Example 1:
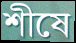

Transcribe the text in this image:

শীষে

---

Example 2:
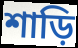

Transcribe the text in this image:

শাড়ি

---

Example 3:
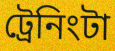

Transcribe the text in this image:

ট্রেনিংটা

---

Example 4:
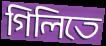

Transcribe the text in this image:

গিলিতে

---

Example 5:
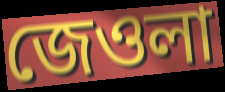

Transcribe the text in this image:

জেওলা